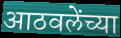
आठवलेंच्या